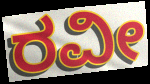
ರವೀ